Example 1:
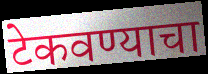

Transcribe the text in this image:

टेकवण्याचा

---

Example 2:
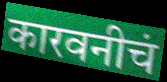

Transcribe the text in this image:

कारवनीचं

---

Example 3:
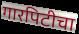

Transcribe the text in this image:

गारपिटीचा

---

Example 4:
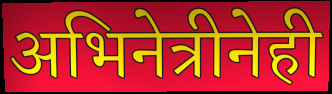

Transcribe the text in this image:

अभिनेत्रीनेही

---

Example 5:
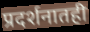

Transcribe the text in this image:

प्रदर्शनातही